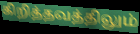
கிறித்தவத்திலும்